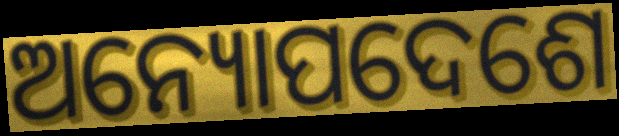
ଅନ୍ୟୋପଦେଶେ